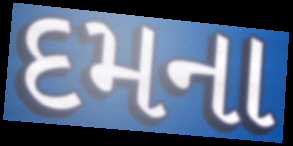
દમના